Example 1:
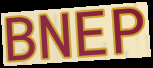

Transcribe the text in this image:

BNEP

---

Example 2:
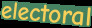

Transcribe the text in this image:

electoral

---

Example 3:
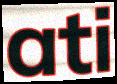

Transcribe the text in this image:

ati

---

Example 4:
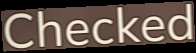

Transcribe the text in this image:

Checked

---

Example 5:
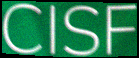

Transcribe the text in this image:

CISF